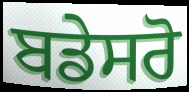
ਬਡੇਸਰੋ